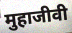
मुहाजीवी